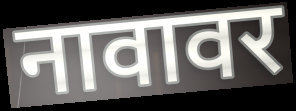
नावावर